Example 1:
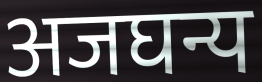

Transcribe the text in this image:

अजघन्य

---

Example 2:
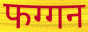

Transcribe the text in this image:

फग्गन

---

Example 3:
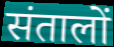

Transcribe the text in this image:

संतालों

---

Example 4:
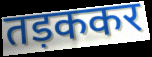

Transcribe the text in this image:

तड़ककर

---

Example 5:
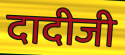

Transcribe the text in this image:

दादीजी